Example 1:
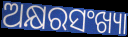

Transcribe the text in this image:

ଅକ୍ଷରସଂଖ୍ୟା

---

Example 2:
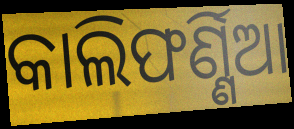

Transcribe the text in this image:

କାଲିଫର୍ଣ୍ଣିଆ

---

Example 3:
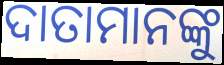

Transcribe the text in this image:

ଦାତାମାନଙ୍କୁ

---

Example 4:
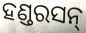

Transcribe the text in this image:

ହଣ୍ଡରସନ୍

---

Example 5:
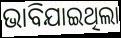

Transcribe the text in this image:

ଭାବିଯାଇଥିଲା